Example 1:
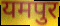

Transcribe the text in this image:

यमपुर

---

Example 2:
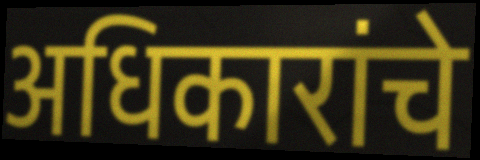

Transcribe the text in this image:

अधिकारांचे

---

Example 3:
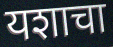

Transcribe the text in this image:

यशाचा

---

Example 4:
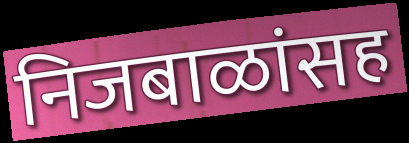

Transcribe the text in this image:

निजबाळांसह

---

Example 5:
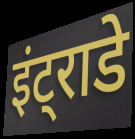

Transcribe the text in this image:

इंट्राडे